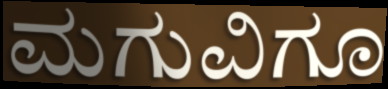
ಮಗುವಿಗೂ